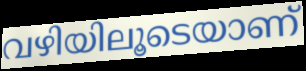
വഴിയിലൂടെയാണ്